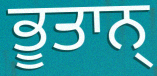
ਭੂਤਾਨ੍